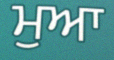
ਮੁਆ